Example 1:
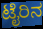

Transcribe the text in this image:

ಟೈರಿನ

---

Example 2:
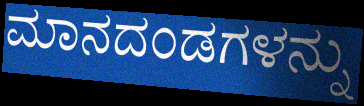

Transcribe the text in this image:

ಮಾನದಂಡಗಳನ್ನು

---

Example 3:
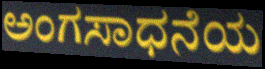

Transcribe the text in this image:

ಅಂಗಸಾಧನೆಯ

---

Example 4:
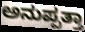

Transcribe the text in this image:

ಅನುಪ್ಪತ್ತಾ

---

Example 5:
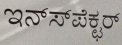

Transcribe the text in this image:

ಇನ್ಸ್‍ಪೆಕ್ಟರ್